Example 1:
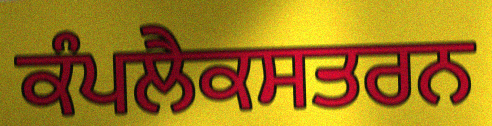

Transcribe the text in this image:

ਕੰਪਲੈਕਸਤਰਨ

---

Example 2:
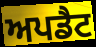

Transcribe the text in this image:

ਅਪਡੈਟ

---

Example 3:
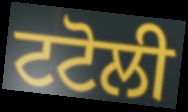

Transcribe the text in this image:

ਟਟੋਲੀ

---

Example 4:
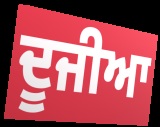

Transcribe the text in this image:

ਦੂਜੀਆ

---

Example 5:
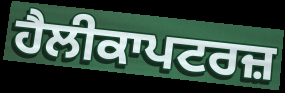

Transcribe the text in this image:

ਹੈਲੀਕਾਪਟਰਜ਼